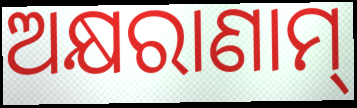
ଅକ୍ଷରାଣାମ୍